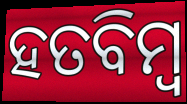
ହତବିମ୍ବ